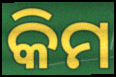
କିମ